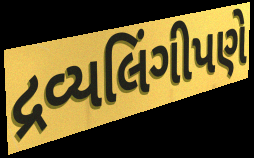
દ્રવ્યલિંગીપણે